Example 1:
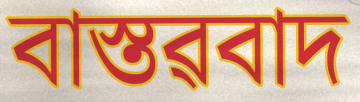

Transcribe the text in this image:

বাস্তৱবাদ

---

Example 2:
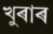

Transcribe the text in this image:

খুৰাৰ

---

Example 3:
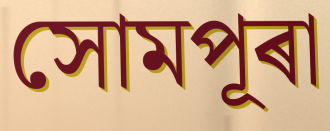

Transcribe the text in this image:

সোমপূৰা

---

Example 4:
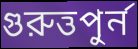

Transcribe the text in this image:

গুৰুত্তপুৰ্ন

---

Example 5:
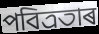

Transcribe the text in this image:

পবিত্ৰতাৰ